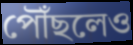
পৌঁছলেও